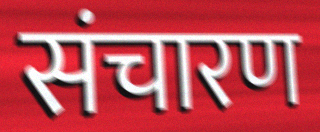
संचारण